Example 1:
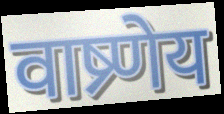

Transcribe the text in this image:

वाष्र्णेय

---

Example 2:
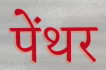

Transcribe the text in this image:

पेंथर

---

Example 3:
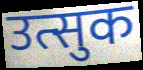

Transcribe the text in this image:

उत्सुक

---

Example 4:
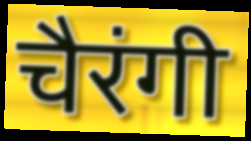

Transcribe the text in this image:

चैरंगी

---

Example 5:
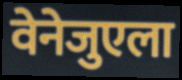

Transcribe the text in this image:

वेनेजुएला